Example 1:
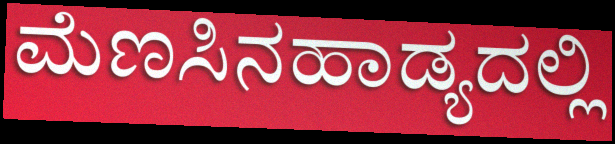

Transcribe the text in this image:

ಮೆಣಸಿನಹಾಡ್ಯದಲ್ಲಿ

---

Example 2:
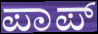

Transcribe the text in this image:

ಪಾಪ್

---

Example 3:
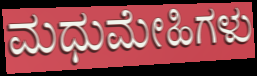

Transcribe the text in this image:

ಮಧುಮೇಹಿಗಳು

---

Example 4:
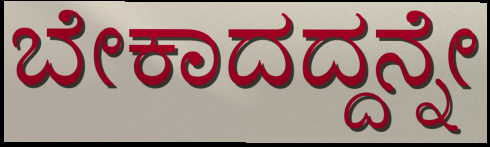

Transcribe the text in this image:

ಬೇಕಾದದ್ದನ್ನೇ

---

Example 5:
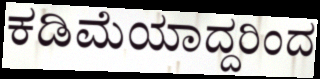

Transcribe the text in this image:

ಕಡಿಮೆಯಾದ್ದರಿಂದ